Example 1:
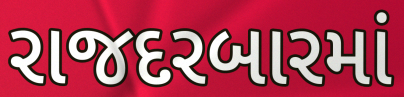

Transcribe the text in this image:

રાજદરબારમાં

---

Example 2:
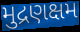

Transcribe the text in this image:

મુદ્રણક્ષમ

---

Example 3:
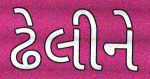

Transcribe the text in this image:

ઢેલીને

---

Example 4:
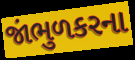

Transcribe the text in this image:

જાંભુળકરના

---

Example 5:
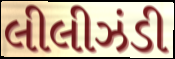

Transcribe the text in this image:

લીલીઝંડી